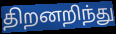
திறனறிந்து